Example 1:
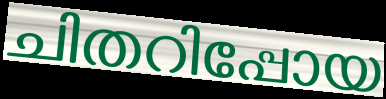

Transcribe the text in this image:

ചിതറിപ്പോയ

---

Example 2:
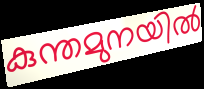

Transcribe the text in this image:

കുന്തമുനയിൽ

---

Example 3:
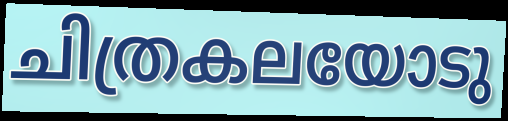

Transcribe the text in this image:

ചിത്രകലയോടു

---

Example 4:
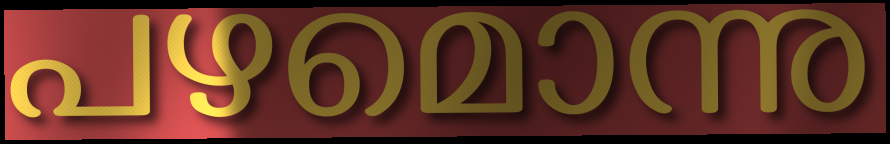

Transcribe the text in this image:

പഴമൊന്നു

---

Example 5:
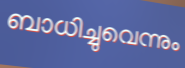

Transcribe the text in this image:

ബാധിച്ചുവെന്നും